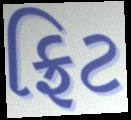
ફ્રિટ